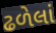
ઢળેલાં